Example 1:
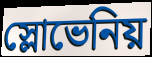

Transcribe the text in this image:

স্লোভেনিয়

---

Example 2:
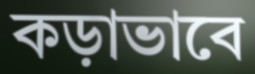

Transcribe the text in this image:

কড়াভাবে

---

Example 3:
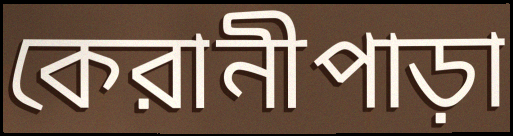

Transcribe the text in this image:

কেরানীপাড়া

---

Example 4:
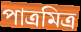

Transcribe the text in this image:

পাত্রমিত্র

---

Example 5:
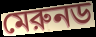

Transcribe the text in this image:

মেরুনড